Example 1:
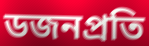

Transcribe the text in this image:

ডজনপ্রতি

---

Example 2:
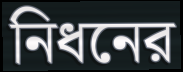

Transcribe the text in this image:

নিধনের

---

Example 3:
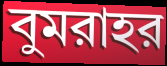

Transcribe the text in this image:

বুমরাহর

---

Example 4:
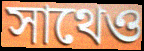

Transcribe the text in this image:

সাথেও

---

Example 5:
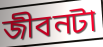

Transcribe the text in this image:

জীবনটা